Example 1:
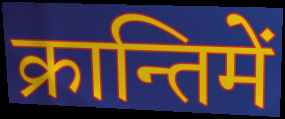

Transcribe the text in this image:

क्रान्तिमें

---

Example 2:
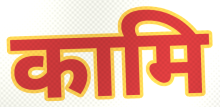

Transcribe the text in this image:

कामि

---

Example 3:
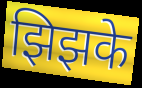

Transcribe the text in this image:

झिझके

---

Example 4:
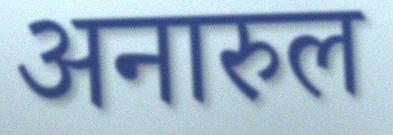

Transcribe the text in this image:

अनारुल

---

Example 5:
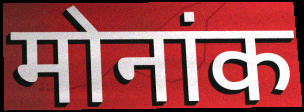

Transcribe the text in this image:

मोनांक